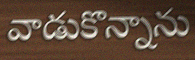
వాడుకొన్నాను